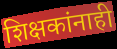
शिक्षकांनाही